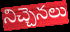
నిచ్చెనలు